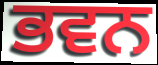
ਭਵਨ